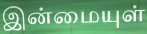
இன்மையுள்